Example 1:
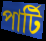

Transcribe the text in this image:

পাৰ্টি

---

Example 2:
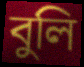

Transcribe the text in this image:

বুলি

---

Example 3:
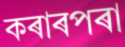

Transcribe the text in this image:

কৰাৰপৰা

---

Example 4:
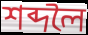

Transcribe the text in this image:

শব্দলৈ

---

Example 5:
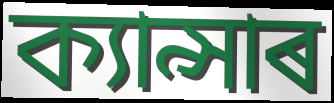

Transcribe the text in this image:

ক্যান্সাৰ